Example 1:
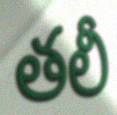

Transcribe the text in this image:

తలీ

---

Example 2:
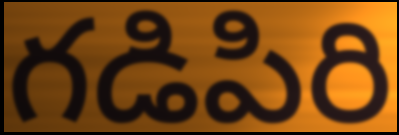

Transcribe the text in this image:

గడిపిరి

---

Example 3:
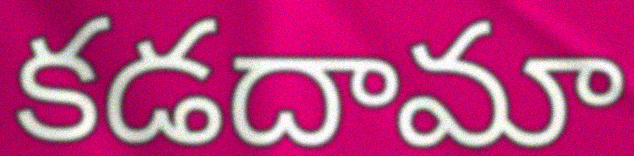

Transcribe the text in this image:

కడదామా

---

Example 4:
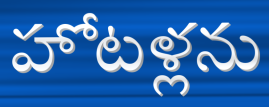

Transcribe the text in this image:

హోటళ్లను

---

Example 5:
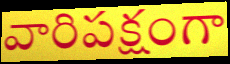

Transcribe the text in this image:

వారిపక్షంగా